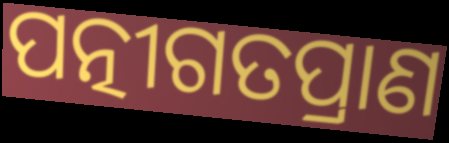
ପତ୍ନୀଗତପ୍ରାଣ